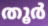
തൂർ